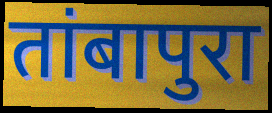
तांबापुरा